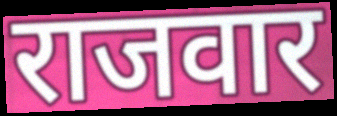
राजवार